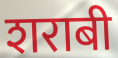
शराबी